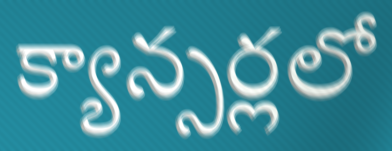
క్యాన్సర్లలో